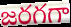
జరగగా